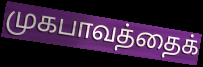
முகபாவத்தைக்